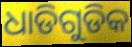
ଧାଡିଗୁଡିକ